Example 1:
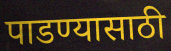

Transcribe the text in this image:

पाडण्यासाठी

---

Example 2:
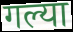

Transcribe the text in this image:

गल्या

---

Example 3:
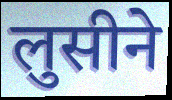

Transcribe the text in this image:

लुसीने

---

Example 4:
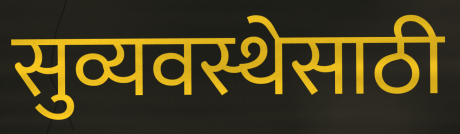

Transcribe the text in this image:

सुव्यवस्थेसाठी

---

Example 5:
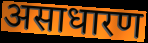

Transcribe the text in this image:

असाधारण